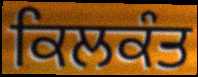
ਕਿਲਕੰਤ